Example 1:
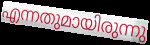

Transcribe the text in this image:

എന്നതുമായിരുന്നു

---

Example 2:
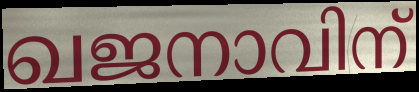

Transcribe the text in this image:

ഖജനാവിന്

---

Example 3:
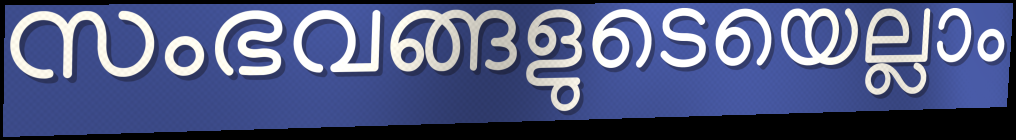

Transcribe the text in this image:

സംഭവങ്ങളുടെയെല്ലാം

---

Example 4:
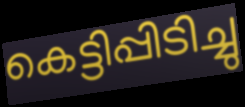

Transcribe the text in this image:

കെട്ടിപ്പിടിച്ചു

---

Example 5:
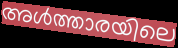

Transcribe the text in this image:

അൾത്താരയിലെ